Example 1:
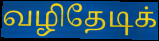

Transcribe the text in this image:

வழிதேடிக்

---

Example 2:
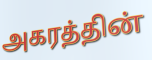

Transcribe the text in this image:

அகரத்தின்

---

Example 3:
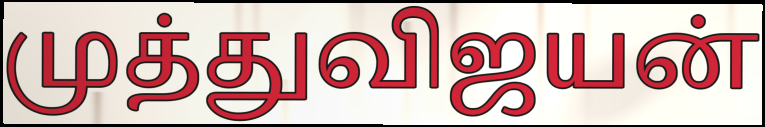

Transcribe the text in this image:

முத்துவிஜயன்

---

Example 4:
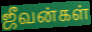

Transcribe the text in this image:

ஜீவன்கள்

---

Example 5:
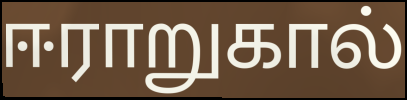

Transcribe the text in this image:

ஈராறுகால்